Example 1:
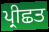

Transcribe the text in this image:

ਪ੍ਰੀਛਤ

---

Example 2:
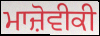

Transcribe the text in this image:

ਮਾਜ਼ੋਵੀਕੀ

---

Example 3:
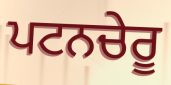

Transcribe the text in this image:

ਪਟਨਚੇਰੂ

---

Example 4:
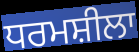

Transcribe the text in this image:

ਧਰਮਸ਼ੀਲਾ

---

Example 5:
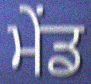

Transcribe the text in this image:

ਮੇਂਡ